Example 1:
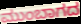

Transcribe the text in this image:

ಮುಂಬಾಗದ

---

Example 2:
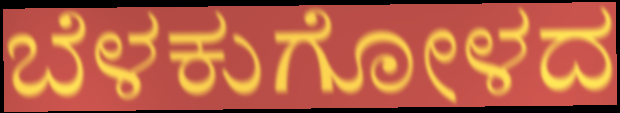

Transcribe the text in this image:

ಬೆಳಕುಗೋಳದ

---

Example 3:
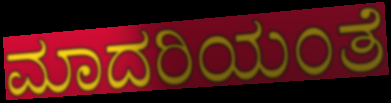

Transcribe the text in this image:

ಮಾದರಿಯಂತೆ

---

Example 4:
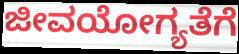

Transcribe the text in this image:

ಜೀವಯೋಗ್ಯತೆಗೆ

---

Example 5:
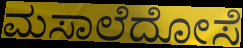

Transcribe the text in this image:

ಮಸಾಲೆದೋಸೆ